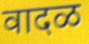
वादळ